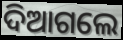
ଦିଆଗଲେ